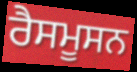
ਰੈਸਮੂਸਨ